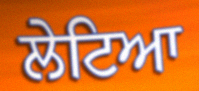
ਲੇਟਿਆ